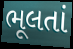
ભૂલતાં